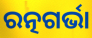
ରତ୍ନଗର୍ଭା